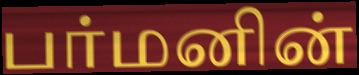
பர்மனின்